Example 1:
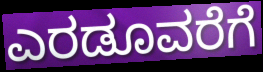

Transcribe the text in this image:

ಎರಡೂವರೆಗೆ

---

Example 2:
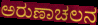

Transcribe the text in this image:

ಅರುಣಾಚಲನ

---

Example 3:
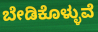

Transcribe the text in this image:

ಬೇಡಿಕೊಳ್ಳುವೆ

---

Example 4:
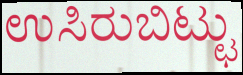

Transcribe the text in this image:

ಉಸಿರುಬಿಟ್ಟು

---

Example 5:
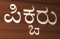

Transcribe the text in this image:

ಪಿಕ್ಚರು